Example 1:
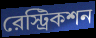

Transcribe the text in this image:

রেস্ট্রিকশন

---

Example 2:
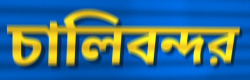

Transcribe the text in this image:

চালিবন্দর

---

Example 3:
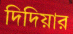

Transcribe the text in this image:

দিদিয়ার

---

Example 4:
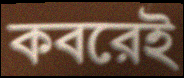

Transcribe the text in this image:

কবরেই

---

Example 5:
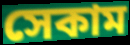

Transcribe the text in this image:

সেকাম